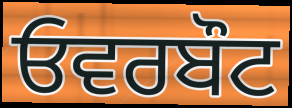
ਓਵਰਬੌਟ